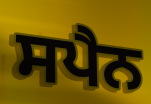
ਸਪੈਨ